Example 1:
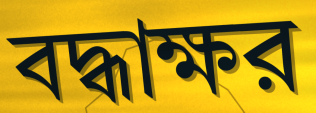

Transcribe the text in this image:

বদ্ধাক্ষর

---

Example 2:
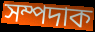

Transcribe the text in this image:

সম্পদাক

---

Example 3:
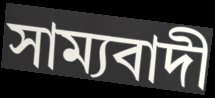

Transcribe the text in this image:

সাম্যবাদী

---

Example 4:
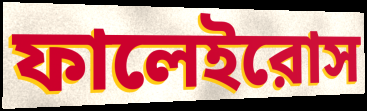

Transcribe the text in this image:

ফালেইরোস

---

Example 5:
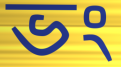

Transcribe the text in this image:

ভং